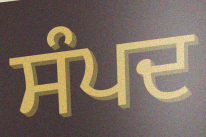
ਸੰਪਦ